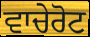
ਵਾਚੇਰੋਟ